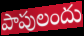
పాపులందు